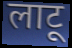
लाटू